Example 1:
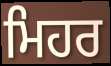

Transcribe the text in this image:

ਮਿਹਰ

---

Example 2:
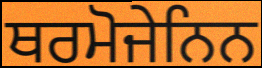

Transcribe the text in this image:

ਥਰਮੋਜੇਨਿਨ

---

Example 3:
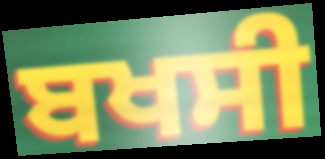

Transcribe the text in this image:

ਬਖਸੀ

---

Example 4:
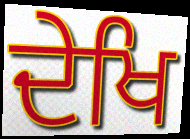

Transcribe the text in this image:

ਦੇਖਿ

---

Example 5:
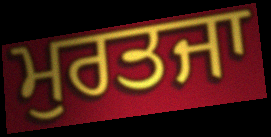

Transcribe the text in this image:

ਮੁਰਤਜਾ